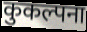
कुकल्पना